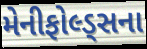
મેનીફોલ્ડ્સના